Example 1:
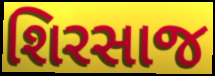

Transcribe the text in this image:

શિરસાજ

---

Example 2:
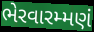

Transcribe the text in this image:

ભેરવારમ્મણં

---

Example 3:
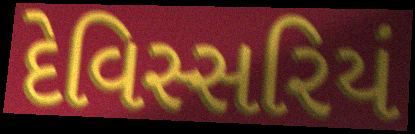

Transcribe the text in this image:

દેવિસ્સરિયં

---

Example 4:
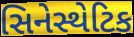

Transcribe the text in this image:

સિનેસ્થેટિક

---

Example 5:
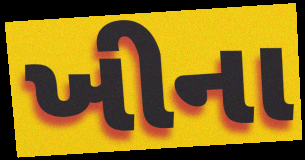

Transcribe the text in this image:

ખીના